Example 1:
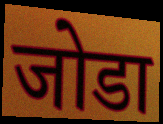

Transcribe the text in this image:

जोडा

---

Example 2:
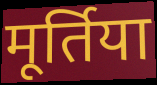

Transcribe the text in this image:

मूर्तिया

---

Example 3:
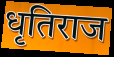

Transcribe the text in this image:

धृतिराज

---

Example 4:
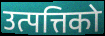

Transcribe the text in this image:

उत्पत्तिको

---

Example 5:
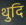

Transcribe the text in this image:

थुदि